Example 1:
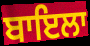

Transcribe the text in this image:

ਬਾਇਲਾ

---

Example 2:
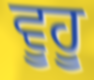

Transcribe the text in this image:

ਵੂਹੂ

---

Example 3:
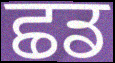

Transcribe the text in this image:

ਛਡ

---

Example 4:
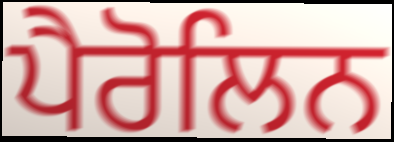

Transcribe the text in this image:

ਪੈਰੋਲਿਨ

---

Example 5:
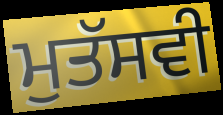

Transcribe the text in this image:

ਮੁਤੱਸਵੀ